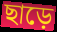
ছাড়ে